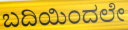
ಬದಿಯಿಂದಲೇ